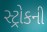
સ્ટ્રોકની